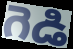
గెడి